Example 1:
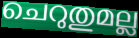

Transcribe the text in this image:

ചെറുതുമല്ല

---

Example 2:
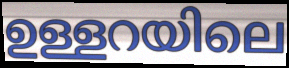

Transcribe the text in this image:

ഉള്ളറയിലെ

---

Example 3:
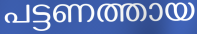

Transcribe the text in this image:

പട്ടണത്തായ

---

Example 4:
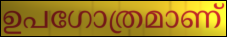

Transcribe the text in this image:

ഉപഗോത്രമാണ്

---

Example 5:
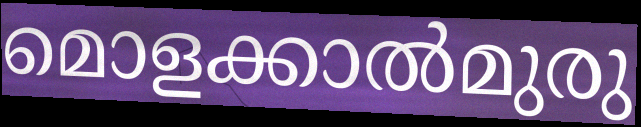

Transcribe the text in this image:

മൊളക്കാൽമുരു